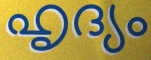
ഹൃദ്യം